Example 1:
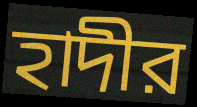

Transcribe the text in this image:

হাদীর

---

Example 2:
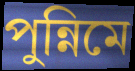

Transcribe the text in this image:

পুন্নিমে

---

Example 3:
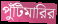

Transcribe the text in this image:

পুঁটিমারির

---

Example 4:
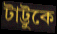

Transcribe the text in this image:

টাট্টুকে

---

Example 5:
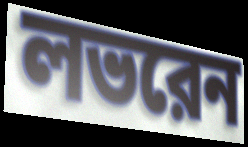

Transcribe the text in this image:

লভরেন